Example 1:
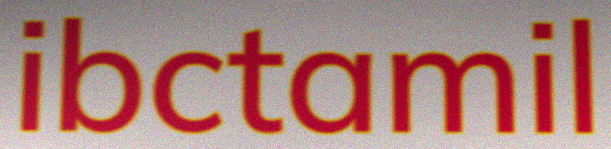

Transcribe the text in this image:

ibctamil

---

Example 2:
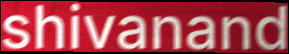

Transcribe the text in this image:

shivanand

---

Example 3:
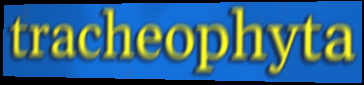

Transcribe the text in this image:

tracheophyta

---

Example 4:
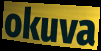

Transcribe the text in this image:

okuva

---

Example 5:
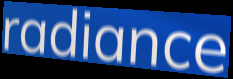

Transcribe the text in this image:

radiance